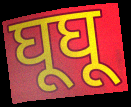
घूघू